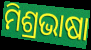
ମିଶ୍ରଭାଷା